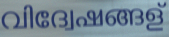
വിദ്വേഷങ്ങള്